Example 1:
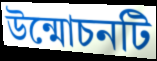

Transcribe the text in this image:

উন্মোচনটি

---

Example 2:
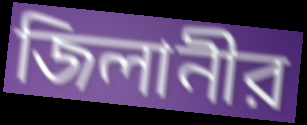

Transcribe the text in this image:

জিলানীর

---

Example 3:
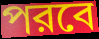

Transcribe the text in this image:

পরবে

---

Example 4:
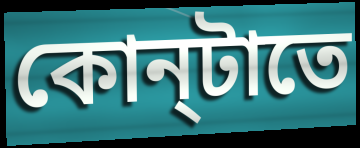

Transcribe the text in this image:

কোন্‌টাতে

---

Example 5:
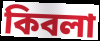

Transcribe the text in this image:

কিবলা